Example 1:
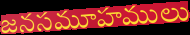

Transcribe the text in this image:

జనసమూహములు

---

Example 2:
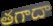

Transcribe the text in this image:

తగాదా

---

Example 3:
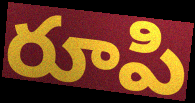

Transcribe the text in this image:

రూపి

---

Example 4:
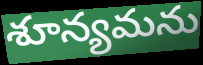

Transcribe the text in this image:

శూన్యమను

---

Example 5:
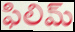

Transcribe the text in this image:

ఫిలిమ్